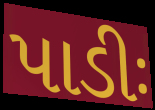
પાડીઃ